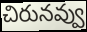
చిరునవ్వు